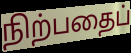
நிற்பதைப்